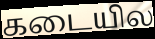
கடையில